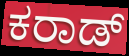
ಕರಾಡ್